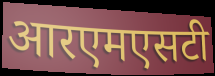
आरएमएसटी